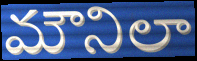
మౌనిలా